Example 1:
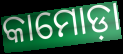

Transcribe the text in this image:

କାମୋଡ଼ା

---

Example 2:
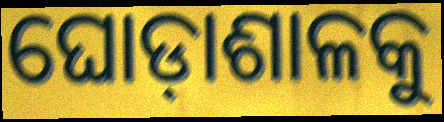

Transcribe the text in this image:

ଘୋଡ଼ାଶାଳକୁ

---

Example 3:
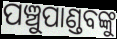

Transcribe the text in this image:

ପଞ୍ଚୁପାଣ୍ଡବଙ୍କୁ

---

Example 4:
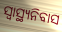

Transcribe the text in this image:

ସ୍ୱାସ୍ଥ୍ୟନିବାସ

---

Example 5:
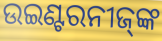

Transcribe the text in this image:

ଉଇଣ୍ଟରନୀଜ୍‌ଙ୍କ